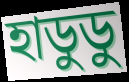
হাডুডু